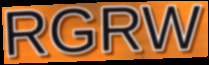
RGRW